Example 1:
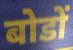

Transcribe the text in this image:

बोडों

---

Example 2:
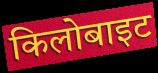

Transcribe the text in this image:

किलोबाइट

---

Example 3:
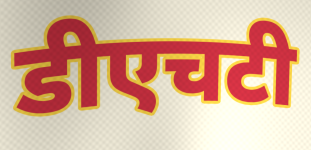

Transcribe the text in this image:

डीएचटी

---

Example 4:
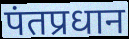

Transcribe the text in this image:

पंतप्रधान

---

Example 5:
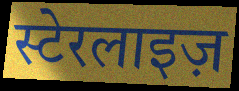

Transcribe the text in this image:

स्टेरलाइज़